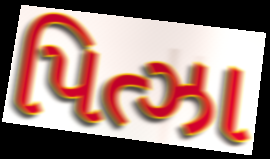
પિત્ઝા